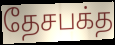
தேசபக்த